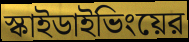
স্কাইডাইভিংয়ের